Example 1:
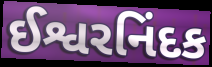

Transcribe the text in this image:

ઈશ્વરનિંદક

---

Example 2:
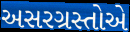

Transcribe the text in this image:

અસરગ્રસ્તોએ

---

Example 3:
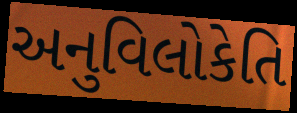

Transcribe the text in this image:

અનુવિલોકેતિ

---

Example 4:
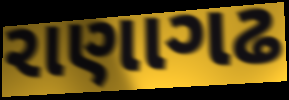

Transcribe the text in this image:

રાણાગઢ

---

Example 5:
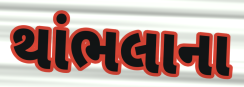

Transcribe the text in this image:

થાંભલાના